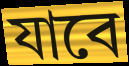
যাবে